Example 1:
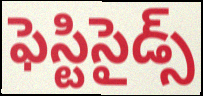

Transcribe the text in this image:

ఫెస్టిసైడ్స్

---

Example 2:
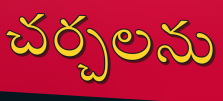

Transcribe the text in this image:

చర్చలను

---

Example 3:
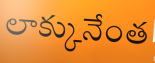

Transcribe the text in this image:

లాక్కునేంత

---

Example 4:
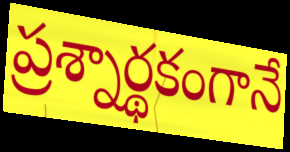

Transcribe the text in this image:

ప్రశ్నార్థకంగానే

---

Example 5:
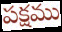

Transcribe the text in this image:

పక్షము